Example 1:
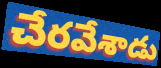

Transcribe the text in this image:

చేరవేశాడు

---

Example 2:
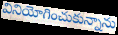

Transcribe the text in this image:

వినియోగించుకున్నాను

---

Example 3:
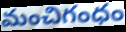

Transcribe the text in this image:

మంచిగంధం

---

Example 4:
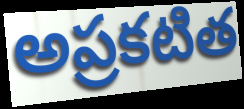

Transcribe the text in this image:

అప్రకటిత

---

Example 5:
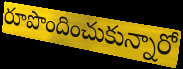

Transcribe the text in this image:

రూపొందించుకున్నారో